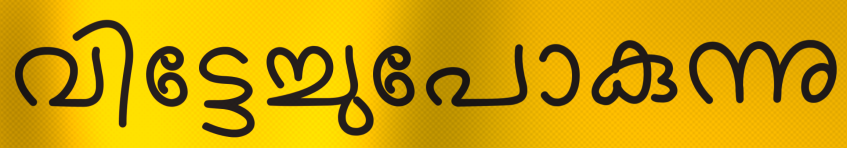
വിട്ടേച്ചുപോകുന്നു